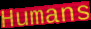
Humans